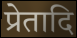
प्रेतादि